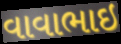
વાવાભાઇ